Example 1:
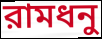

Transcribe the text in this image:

রামধনু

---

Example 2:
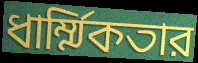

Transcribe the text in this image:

ধার্ম্মিকতার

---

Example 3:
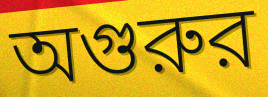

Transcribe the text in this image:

অগুরুর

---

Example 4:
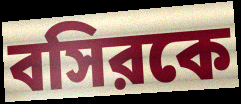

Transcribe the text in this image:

বসিরকে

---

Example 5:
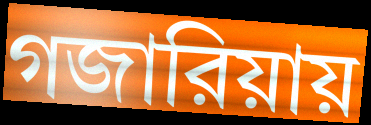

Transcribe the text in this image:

গজারিয়ায়